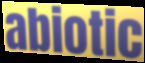
abiotic